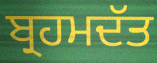
ਬ੍ਰਹਮਦੱਤ